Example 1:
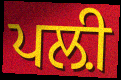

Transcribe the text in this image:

ਪਲ਼ੀ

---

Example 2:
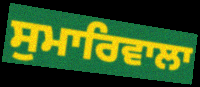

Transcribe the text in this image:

ਸੁਮਾਰਿਵਾਲਾ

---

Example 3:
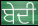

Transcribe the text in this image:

ਬੇਦੀ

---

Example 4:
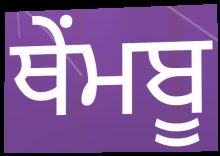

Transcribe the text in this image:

ਥੇਂਮਬੂ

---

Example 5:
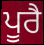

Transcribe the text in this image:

ਪੂਰੈ